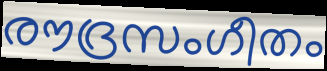
രൗദ്രസംഗീതം